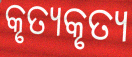
କୃତ୍ଯକୃତ୍ଯ